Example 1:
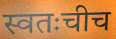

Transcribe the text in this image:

स्वतःचीच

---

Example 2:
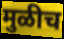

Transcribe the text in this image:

मुळीच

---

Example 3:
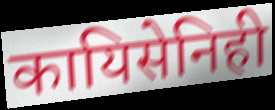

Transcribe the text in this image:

कायिसेनिही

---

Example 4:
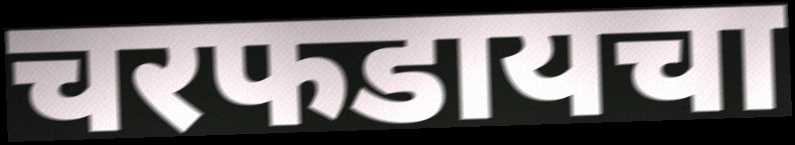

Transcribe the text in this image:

चरफडायचा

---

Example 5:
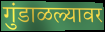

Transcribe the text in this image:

गुंडाळल्यावर